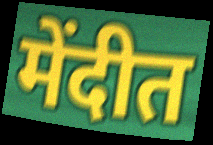
मेंदीत